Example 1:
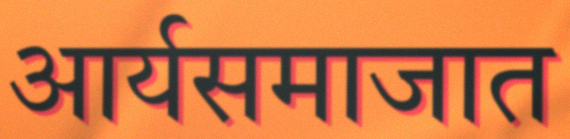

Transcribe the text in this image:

आर्यसमाजात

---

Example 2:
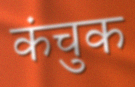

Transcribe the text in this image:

कंचुक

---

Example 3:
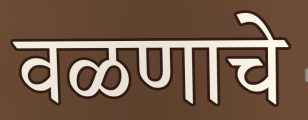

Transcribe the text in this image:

वळणाचे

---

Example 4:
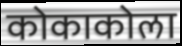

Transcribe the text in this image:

कोकाकोला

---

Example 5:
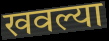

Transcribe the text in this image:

खवल्या